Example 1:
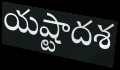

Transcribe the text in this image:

యష్టాదశ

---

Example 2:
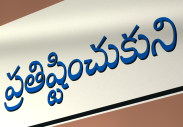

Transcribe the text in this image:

ప్రతిష్టించుకుని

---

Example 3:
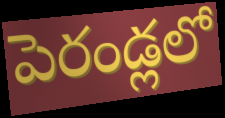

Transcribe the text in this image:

పెరండ్లలో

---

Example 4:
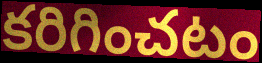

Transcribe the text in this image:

కరిగించటం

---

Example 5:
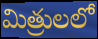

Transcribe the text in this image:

మిత్రులలో